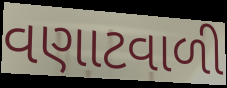
વણાટવાળી